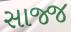
સાજ્જ